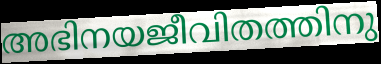
അഭിനയജീവിതത്തിനു